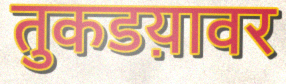
तुकडय़ावर